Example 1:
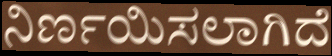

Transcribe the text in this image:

ನಿರ್ಣಯಿಸಲಾಗಿದೆ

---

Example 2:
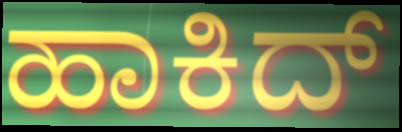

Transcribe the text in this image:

ಹಾಕಿದ್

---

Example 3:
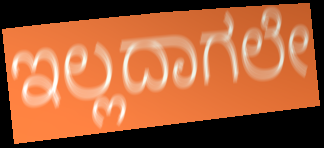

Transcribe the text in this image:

ಇಲ್ಲದಾಗಲೇ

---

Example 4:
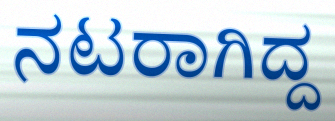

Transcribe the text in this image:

ನಟರಾಗಿದ್ದ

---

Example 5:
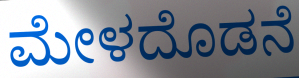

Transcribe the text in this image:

ಮೇಳದೊಡನೆ